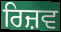
ਰਿਜ਼ਵ